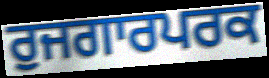
ਰੁਜਗਾਰਪਰਕ